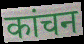
कांचन